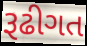
રૂઢીગત